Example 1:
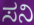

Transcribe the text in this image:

ಸನಿ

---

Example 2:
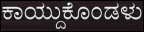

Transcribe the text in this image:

ಕಾಯ್ದುಕೊಂಡಳು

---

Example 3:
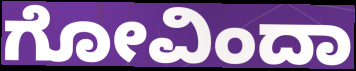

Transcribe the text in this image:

ಗೋವಿಂದಾ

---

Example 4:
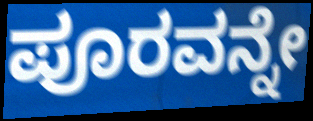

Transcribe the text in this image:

ಪೂರವನ್ನೇ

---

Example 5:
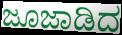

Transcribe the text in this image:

ಜೂಜಾಡಿದ